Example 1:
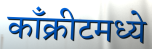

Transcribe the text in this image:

काँक्रीटमध्ये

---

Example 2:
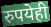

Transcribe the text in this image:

रुपयेही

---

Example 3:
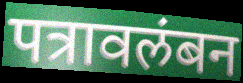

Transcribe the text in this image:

पत्रावलंबन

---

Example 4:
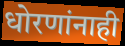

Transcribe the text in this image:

धोरणांनाही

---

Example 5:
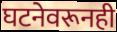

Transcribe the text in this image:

घटनेवरूनही